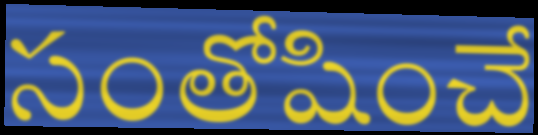
సంతోషించే